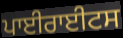
ਪਾਈਰਾਈਟਸ